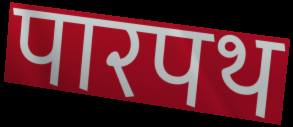
पारपथ